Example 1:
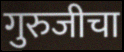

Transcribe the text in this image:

गुरुजीचा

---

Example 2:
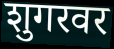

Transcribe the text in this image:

शुगरवर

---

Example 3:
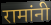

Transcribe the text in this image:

रामांनी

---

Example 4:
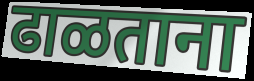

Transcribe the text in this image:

ढाळताना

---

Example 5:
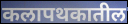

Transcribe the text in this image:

कलापथकातील